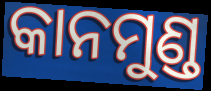
କାନମୁଣ୍ଡ